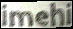
imehi